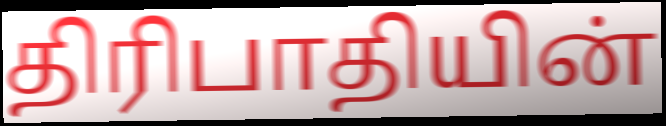
திரிபாதியின்